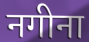
नगीना